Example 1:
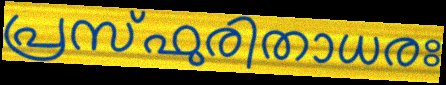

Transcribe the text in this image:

പ്രസ്ഫുരിതാധരഃ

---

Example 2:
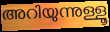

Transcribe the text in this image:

അറിയുന്നുള്ളൂ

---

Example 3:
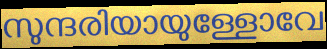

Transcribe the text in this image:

സുന്ദരിയായുള്ളോവേ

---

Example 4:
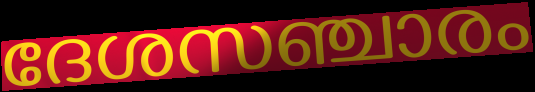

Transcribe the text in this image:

ദേശസഞ്ചാരം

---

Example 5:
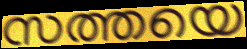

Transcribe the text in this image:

സത്തയെ